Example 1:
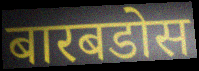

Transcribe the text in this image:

बारबडोस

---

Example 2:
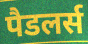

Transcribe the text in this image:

पैडलर्स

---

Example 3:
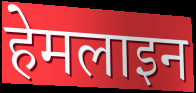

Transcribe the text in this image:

हेमलाइन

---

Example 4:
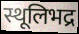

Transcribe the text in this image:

स्थूलिभद्र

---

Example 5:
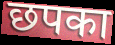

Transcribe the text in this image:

छपका